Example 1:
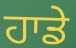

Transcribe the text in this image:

ਹਾਡੇ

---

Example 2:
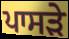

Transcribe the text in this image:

ਪਾਸੜੇ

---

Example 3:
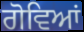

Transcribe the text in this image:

ਗੋਵਿਆਂ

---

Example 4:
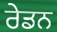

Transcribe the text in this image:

ਰੇਡਨ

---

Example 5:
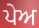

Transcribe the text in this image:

ਪੇਅ